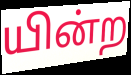
யின்ற